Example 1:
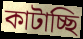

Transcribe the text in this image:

কাটাচ্ছি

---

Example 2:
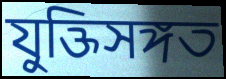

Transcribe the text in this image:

যুক্তিসঙ্গত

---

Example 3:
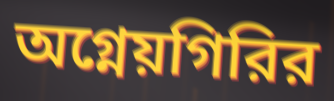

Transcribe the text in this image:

অগ্নেয়গিরির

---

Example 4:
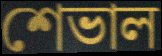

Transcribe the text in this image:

শেভাল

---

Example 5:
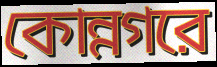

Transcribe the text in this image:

কোন্নগরে